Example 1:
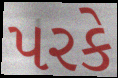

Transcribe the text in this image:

પરકે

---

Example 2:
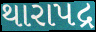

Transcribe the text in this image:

થારાપદ્ર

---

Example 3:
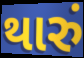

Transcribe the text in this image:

થારું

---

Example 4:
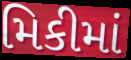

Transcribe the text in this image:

મિકીમાં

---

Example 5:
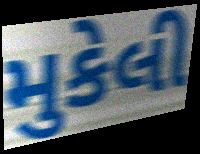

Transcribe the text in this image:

મુકેલી